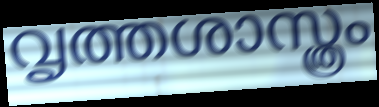
വൃത്തശാസ്ത്രം